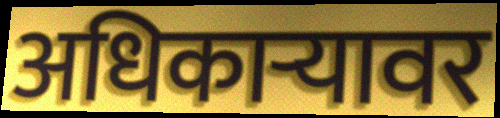
अधिकाऱ्यावर